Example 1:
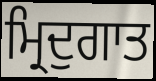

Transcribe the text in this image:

ਮ੍ਰਿਦੁਗਾਤ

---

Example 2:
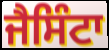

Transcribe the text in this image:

ਜੈਸਿੰਟਾ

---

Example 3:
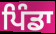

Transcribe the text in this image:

ਪਿੰਡਾ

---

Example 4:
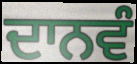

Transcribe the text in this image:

ਦਾਨਵੰ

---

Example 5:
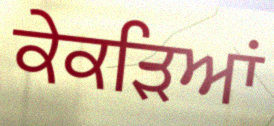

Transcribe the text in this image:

ਕੇਕੜਿਆਂ